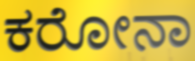
ಕರೋನಾ